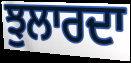
ਝੁਲਾਰਦਾ